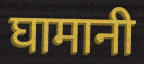
घामानी